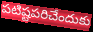
పటిష్టపరిచేందుకు